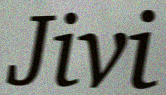
Jivi